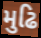
મુઢિ